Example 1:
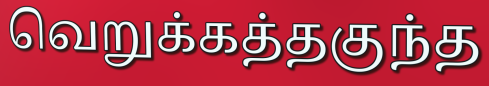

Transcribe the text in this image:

வெறுக்கத்தகுந்த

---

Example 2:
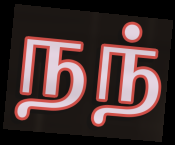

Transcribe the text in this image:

நந்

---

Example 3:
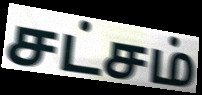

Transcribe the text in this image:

சட்சம்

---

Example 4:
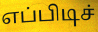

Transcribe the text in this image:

எப்பிடிச்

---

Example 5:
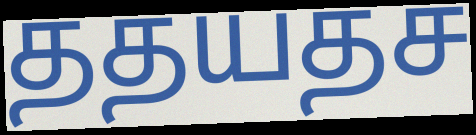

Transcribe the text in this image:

ததயதச